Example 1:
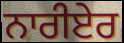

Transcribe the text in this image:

ਨਾਰੀਏਰ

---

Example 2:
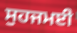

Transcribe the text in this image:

ਸੁਹਜਮਈ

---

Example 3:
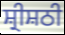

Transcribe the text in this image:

ਸ਼੍ਰੀਸ਼ਠੀ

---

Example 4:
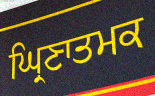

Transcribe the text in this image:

ਘ੍ਰਿਣਾਤਮਕ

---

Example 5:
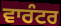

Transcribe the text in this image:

ਵਾਰੰਟਰ